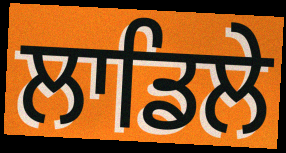
ਲਾਡਿਲੇ